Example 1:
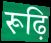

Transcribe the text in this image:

रूढ़ि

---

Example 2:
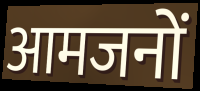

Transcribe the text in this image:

आमजनों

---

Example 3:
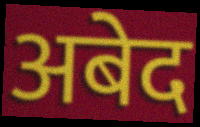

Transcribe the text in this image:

अबेद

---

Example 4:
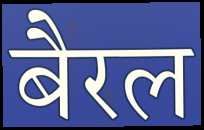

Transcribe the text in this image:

बैरल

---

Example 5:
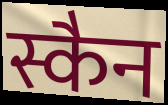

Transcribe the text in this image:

स्कैन